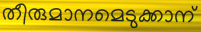
തീരുമാനമെടുക്കാന്